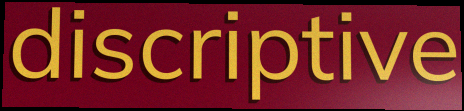
discriptive